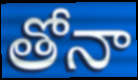
తోనా